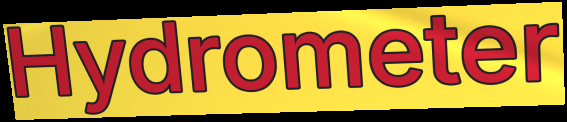
Hydrometer